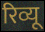
रिव्‍यू